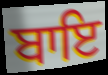
ਬਾਇ